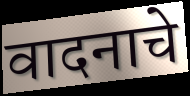
वादनाचे